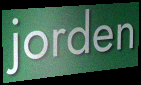
jorden